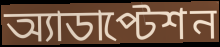
অ্যাডাপ্টেশন